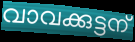
വാവക്കുട്ടന്